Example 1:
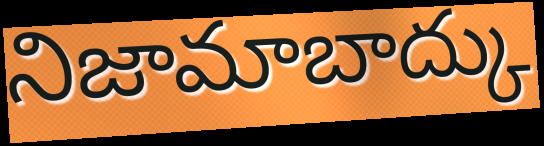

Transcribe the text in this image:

నిజామాబాద్కు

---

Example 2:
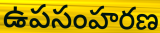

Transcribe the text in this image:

ఉపసంహరణ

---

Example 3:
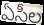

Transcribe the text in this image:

ఏసీల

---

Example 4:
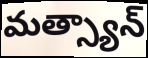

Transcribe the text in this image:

మత్స్యాన్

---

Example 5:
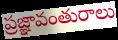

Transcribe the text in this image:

ప్రజ్ఞావంతురాలు